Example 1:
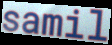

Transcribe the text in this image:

samil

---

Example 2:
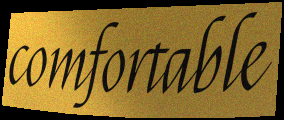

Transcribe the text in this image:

comfortable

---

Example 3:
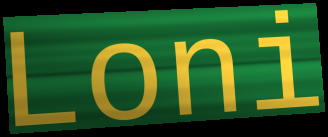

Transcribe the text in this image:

Loni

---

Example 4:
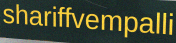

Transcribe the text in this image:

shariffvempalli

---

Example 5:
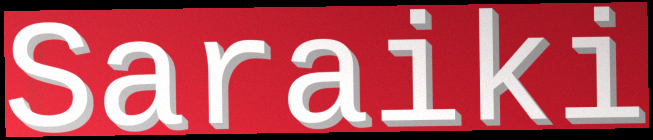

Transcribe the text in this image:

Saraiki